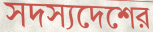
সদস্যদেশের